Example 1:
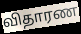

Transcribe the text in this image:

விதாரண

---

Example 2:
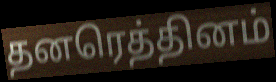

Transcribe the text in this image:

தனரெத்தினம்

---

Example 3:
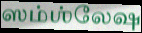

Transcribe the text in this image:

ஸம்ஶ்லேஷ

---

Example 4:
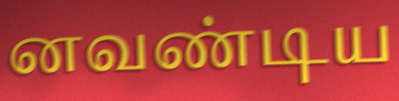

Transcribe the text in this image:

னவண்டிய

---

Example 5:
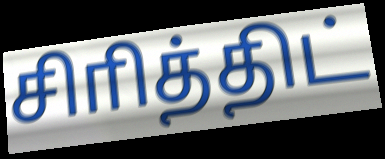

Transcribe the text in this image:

சிரித்திட்